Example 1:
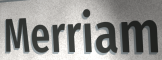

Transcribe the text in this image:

Merriam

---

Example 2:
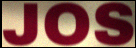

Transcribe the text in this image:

JOS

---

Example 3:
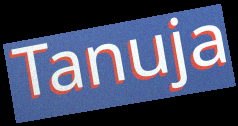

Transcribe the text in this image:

Tanuja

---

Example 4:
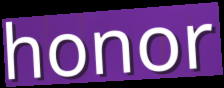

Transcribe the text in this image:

honor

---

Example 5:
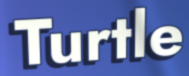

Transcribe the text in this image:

Turtle